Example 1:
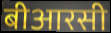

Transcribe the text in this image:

बीआरसी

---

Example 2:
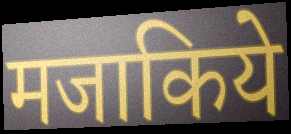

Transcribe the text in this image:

मजाकिये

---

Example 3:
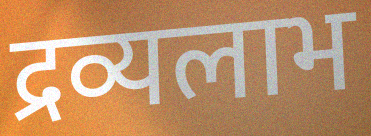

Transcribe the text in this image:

द्रव्यलाभ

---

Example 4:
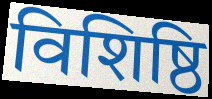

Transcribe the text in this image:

विशिष्ठि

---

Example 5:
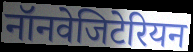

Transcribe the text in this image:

नॉनवेजिटेरियन